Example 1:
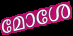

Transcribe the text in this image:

മോശേ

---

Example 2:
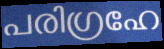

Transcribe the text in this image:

പരിഗ്രഹേ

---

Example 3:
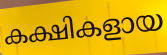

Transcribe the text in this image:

കക്ഷികളായ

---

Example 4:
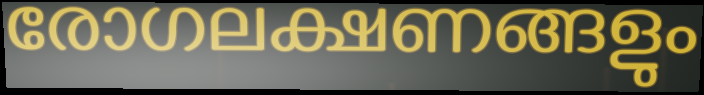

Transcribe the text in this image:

രോഗലക്ഷണങ്ങളും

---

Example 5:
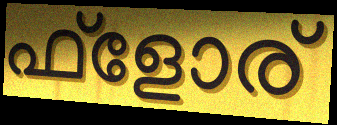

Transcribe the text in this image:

ഫ്ളോര്